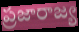
ప్రజారాజ్య